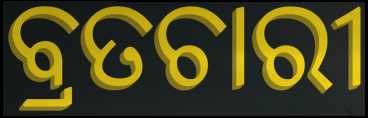
ବ୍ରତଚାରୀ